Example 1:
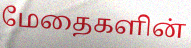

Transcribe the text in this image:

மேதைகளின்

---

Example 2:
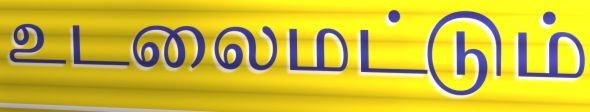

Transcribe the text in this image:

உடலைமட்டும்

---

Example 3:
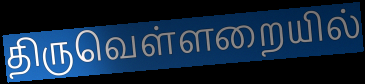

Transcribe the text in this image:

திருவெள்ளறையில்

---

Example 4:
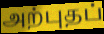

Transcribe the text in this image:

அற்புதப்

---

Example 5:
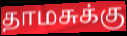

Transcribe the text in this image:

தாமசுக்கு